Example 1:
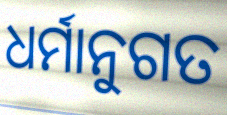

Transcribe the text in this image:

ଧର୍ମାନୁଗତ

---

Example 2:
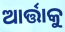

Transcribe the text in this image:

ଆର୍ତ୍ତାକୁ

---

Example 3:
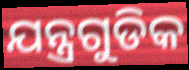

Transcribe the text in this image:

ଯନ୍ତ୍ରଗୁଡିକ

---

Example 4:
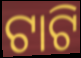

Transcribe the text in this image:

ଟାଟି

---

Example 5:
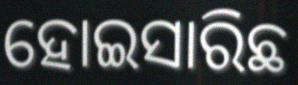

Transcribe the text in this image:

ହୋଇସାରିଛ